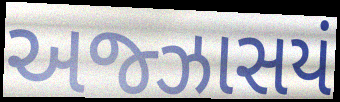
અજ્ઝાસયં